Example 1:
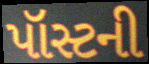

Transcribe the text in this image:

પૉસ્ટની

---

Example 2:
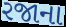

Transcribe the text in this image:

રજાના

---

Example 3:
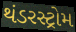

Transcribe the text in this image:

થંડરસ્ટ્રોમ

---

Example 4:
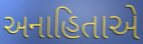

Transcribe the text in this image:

અનાહિતાએ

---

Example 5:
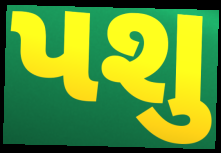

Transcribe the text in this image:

પશુ